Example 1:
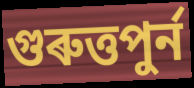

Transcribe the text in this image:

গুৰুত্তপুৰ্ন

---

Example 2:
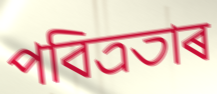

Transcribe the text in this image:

পবিত্ৰতাৰ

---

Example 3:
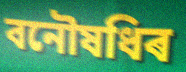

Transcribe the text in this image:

বনৌষধিৰ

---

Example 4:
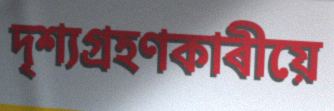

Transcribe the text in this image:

দৃশ্যগ্ৰহণকাৰীয়ে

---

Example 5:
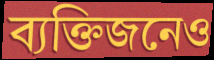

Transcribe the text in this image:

ব্যক্তিজনেও